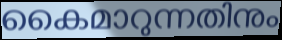
കൈമാറുന്നതിനും